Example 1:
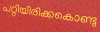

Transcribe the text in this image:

പറ്റിയിരിക്കകൊണ്ടു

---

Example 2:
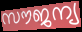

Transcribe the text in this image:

സൗജന്യ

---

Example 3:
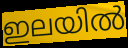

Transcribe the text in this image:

ഇലയിൽ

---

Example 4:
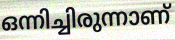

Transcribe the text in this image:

ഒന്നിച്ചിരുന്നാണ്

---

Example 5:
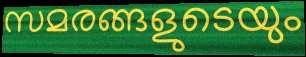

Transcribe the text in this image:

സമരങ്ങളുടെയും